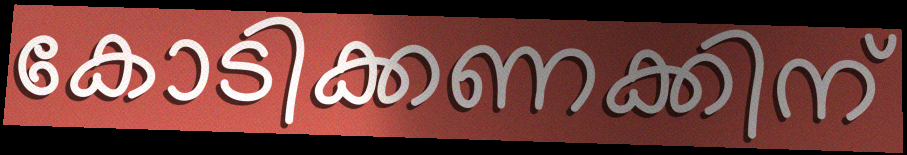
കോടിക്കണക്കിന്